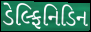
ડેલ્ફિનિડિન